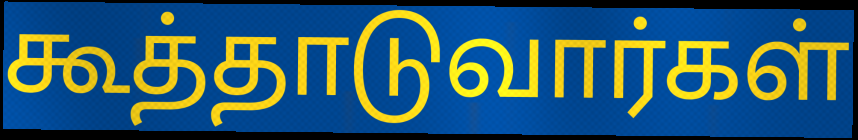
கூத்தாடுவார்கள்